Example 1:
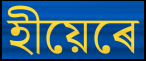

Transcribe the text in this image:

হীয়েৰে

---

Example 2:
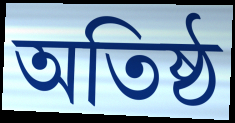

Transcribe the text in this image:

অতিষ্ঠ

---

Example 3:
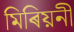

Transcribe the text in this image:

মিৰিয়নী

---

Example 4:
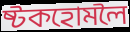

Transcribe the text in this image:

ষ্টকহোমলৈ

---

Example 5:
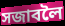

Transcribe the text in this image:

সজাবলৈ